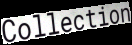
Collection